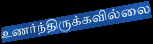
உணர்ந்திருக்கவில்லை